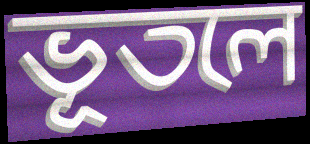
ভূতলে